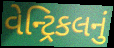
વેન્ટ્રિકલનું